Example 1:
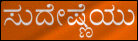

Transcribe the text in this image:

ಸುದೇಷ್ಣೆಯು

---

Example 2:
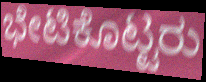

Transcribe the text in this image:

ಭೇಟಿಕೊಟ್ಟರು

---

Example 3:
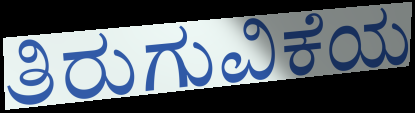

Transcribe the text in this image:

ತಿರುಗುವಿಕೆಯ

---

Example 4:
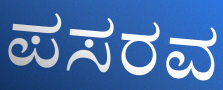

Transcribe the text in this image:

ಪಸರವ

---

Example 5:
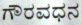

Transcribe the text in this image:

ಗೌರವಧನ